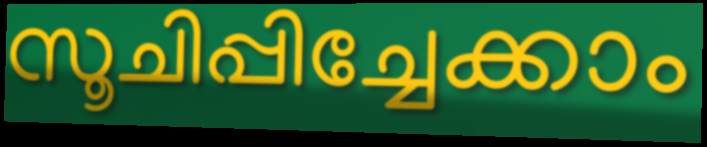
സൂചിപ്പിച്ചേക്കാം